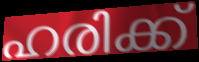
ഹരിക്ക്